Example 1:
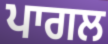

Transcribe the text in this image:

ਪਾਗਲ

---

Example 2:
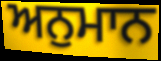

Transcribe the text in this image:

ਅਨੁਮਾਨ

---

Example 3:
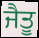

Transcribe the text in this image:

ਜੈਤੂ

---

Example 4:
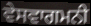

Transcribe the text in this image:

ਵੇਸਵਾਗਮਨੀ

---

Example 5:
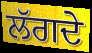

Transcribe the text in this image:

ਲੱਗਦੇ